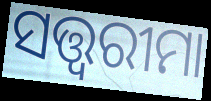
ସତ୍ତ୍ୱରୀମା